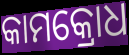
କାମକ୍ରୋଧ